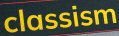
classism